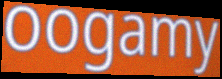
oogamy